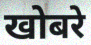
खोबरे